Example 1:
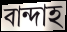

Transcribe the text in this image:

বান্দাহ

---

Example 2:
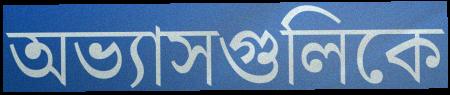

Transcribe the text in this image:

অভ্যাসগুলিকে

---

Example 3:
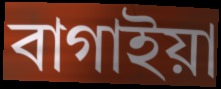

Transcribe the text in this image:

বাগাইয়া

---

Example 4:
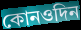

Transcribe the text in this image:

কোনওদিন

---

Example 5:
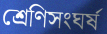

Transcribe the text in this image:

শ্রেণিসংঘর্ষ